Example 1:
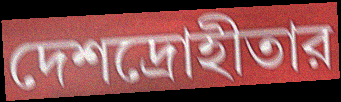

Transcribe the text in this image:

দেশদ্রোহীতার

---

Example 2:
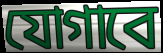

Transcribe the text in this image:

যোগাবে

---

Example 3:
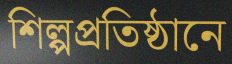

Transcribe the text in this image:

শিল্পপ্রতিষ্ঠানে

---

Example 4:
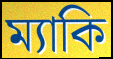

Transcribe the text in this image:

ম্যাকি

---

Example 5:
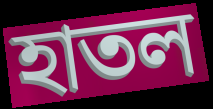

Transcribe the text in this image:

হাতল